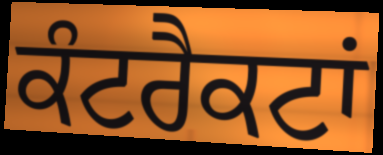
ਕੰਟਰੈਕਟਾਂ